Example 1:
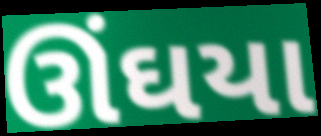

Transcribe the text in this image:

ઊંઘયા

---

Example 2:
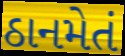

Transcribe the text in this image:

ઠાનમેતં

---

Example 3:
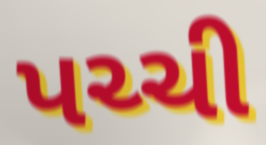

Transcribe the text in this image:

પચ્ચી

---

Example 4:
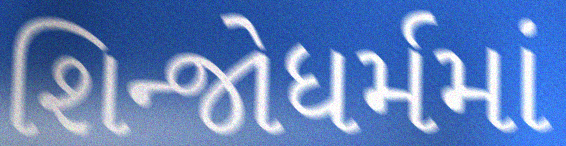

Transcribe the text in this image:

શિન્જોધર્મમાં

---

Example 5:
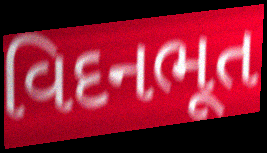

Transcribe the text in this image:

વિદનભૂત